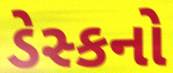
ડેસ્કનો